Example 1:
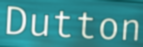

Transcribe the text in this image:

Dutton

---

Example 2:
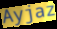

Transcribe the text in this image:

Ayjaz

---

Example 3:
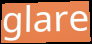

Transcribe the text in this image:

glare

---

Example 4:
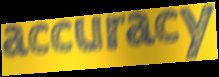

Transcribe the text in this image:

accuracy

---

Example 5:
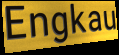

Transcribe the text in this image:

Engkau